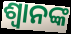
ଶ୍ବାନଙ୍କ